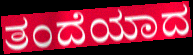
ತಂದೆಯಾದ